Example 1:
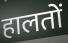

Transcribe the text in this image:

हालतों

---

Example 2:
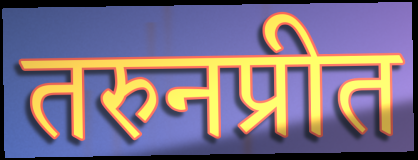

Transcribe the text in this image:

तरुनप्रीत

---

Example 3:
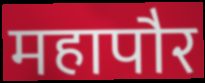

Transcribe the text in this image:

महापौर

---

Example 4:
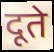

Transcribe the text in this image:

दूते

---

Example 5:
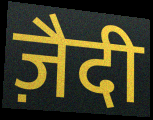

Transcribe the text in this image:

ज़ैदी